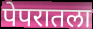
पेपरातला